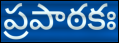
ప్రపాఠకః